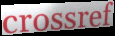
crossref